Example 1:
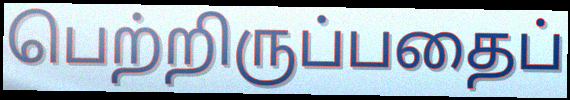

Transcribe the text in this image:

பெற்றிருப்பதைப்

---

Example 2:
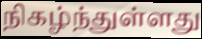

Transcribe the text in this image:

நிகழ்ந்துள்ளது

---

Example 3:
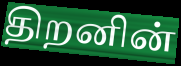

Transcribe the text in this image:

திறனின்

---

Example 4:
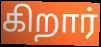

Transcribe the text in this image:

கிறார்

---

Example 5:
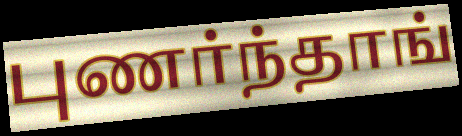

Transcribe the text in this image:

புணர்ந்தாங்